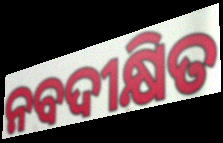
ନବଦୀକ୍ଷିତ